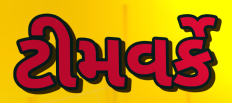
ટીમવર્કે